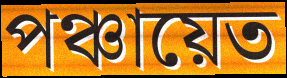
পঞ্চায়েত